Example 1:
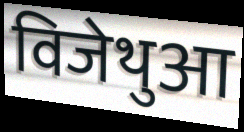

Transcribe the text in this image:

विजेथुआ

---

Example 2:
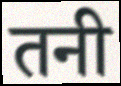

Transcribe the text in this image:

तनी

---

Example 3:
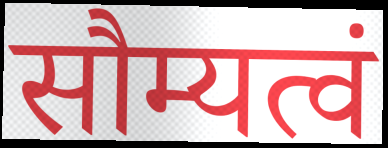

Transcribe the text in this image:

सौम्यत्वं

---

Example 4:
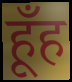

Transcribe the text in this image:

हूँह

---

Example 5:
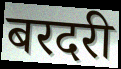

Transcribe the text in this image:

बरदरी